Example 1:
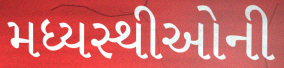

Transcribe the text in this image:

મધ્યસ્થીઓની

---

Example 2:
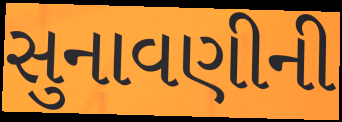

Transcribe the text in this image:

સુનાવણીની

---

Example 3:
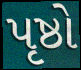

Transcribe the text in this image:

પૃષ્ઠો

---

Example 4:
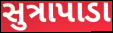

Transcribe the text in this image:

સુત્રાપાડા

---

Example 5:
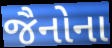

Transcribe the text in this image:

જૈનોના